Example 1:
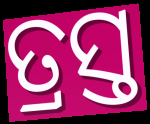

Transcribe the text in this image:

ତ୍ରସ୍ତ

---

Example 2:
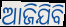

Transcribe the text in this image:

ଆଜିଯିବି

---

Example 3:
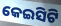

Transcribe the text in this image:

କେଇସିଟି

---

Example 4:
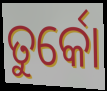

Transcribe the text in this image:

ତୁର୍କୋ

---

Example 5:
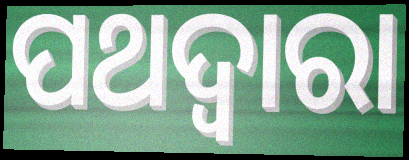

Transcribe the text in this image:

ପଥଦ୍ଵାରା